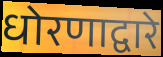
धोरणाद्वारे